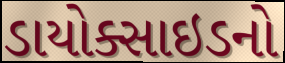
ડાયોક્સાઇડનો